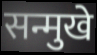
सन्मुखे